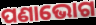
ପଣାଭୋଗ